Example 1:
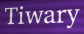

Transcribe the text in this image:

Tiwary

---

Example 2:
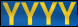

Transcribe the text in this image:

YYYY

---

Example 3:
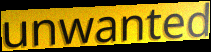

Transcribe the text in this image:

unwanted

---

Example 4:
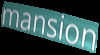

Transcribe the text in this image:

mansion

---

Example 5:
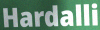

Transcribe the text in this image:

Hardalli